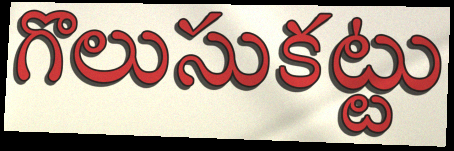
గొలుసుకట్టు